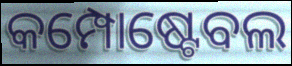
କମ୍ପୋଷ୍ଟେବଲ